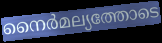
നൈർമല്യത്തോടെ